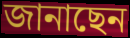
জানাছেন